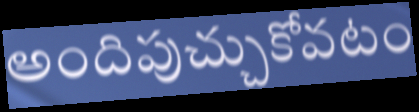
అందిపుచ్చుకోవటం